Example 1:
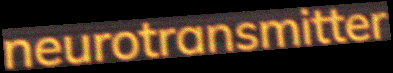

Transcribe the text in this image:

neurotransmitter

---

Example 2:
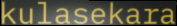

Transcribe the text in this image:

kulasekara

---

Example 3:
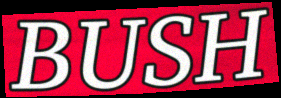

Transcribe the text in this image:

BUSH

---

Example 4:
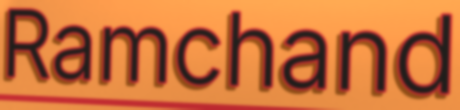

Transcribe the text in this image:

Ramchand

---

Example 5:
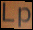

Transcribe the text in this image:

Lp